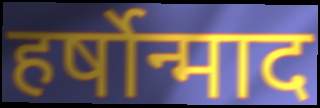
हर्षोन्माद